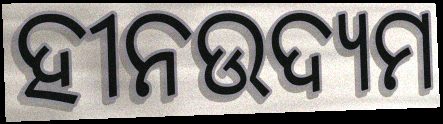
ହୀନଉଦ୍ୟମ